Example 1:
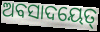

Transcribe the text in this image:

ଅବସାଦୟେତ୍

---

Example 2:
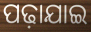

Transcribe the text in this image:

ପଢ଼ାଯାଇ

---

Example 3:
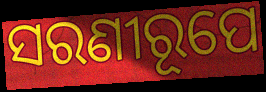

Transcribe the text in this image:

ସରଣୀରୂପେ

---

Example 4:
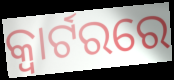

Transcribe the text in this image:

କ୍ବାର୍ଟରରେ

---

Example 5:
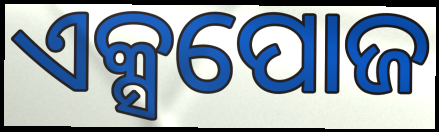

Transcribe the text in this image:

ଏକ୍ସପୋଜ